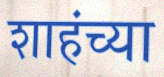
शाहंच्या